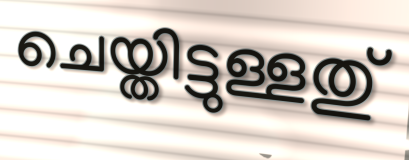
ചെയ്തിട്ടുള്ളതു്